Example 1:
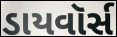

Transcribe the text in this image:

ડાયવૉર્સ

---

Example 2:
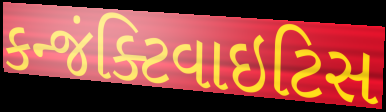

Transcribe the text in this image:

કન્જંક્ટિવાઇટિસ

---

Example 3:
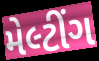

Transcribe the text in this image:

મેલ્ટીંગ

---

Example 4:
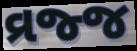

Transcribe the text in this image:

વ્રજ્જ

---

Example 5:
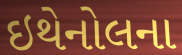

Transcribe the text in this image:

ઇથેનોલના